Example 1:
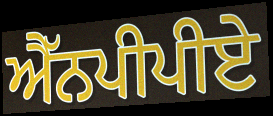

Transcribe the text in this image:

ਐੱਨਪੀਪੀਏ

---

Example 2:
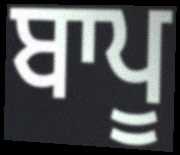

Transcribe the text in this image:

ਬਾਪੂ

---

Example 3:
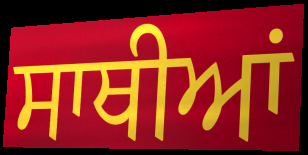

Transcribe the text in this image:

ਸਾਥੀਆਂ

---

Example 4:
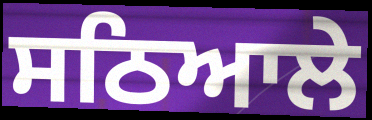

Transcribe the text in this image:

ਸਠਿਆਲੇ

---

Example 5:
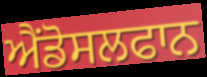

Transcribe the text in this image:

ਐਂਡੋਸਲਫਾਨ